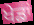
ਖੇਡਾਂ